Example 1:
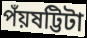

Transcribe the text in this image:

পঁয়ষট্টিটা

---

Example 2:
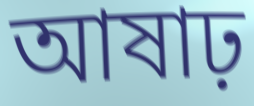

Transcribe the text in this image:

আষাঢ়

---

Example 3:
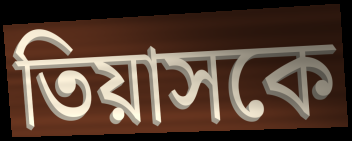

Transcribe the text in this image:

তিয়াসকে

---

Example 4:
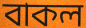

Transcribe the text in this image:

বাকল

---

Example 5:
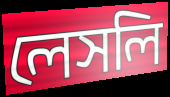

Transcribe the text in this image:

লেসলি